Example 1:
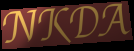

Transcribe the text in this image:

NKDA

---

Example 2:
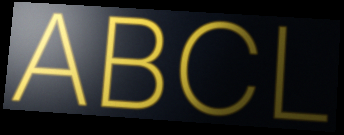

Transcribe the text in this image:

ABCL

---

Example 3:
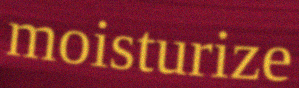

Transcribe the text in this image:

moisturize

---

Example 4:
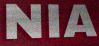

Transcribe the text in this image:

NIA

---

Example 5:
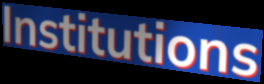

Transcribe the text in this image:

Institutions